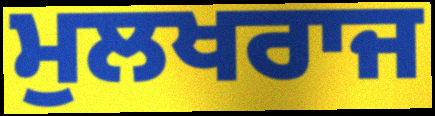
ਮੁਲਖਰਾਜ